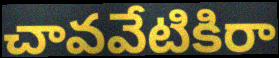
చావవేటికిరా